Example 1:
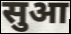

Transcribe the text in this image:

सुआ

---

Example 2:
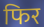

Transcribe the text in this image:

फिर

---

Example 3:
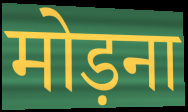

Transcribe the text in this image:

मोड़ना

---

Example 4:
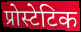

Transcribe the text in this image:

प्रोस्टेटिक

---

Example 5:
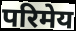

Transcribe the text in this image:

परिमेय